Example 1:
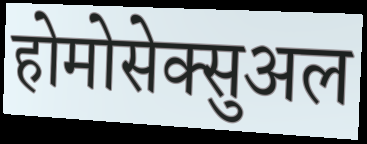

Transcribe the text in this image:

होमोसेक्सुअल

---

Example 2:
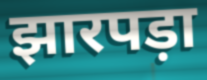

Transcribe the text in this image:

झारपड़ा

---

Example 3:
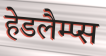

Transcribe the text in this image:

हेडलैम्प्स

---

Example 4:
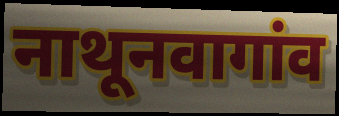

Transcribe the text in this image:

नाथूनवागांव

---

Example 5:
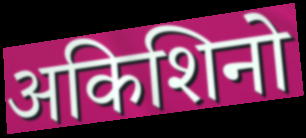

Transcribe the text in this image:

अकिशिनो